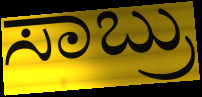
ಸಾಬ್ರು